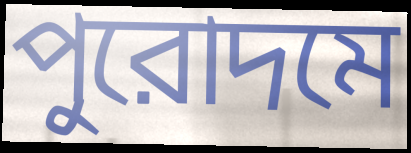
পুরোদমে